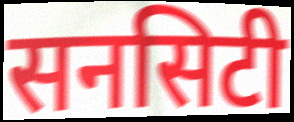
सनसिटी